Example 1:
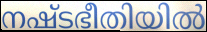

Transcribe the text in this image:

നഷ്ടഭീതിയിൽ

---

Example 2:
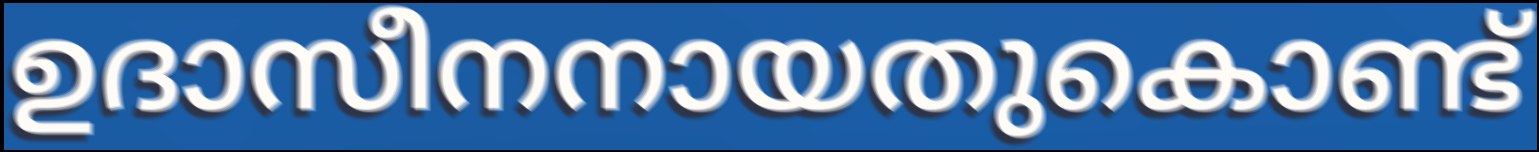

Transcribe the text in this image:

ഉദാസീനനായതുകൊണ്ട്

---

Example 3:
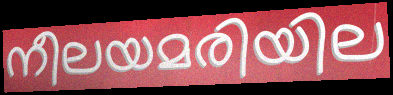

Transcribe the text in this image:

നീലയമരിയില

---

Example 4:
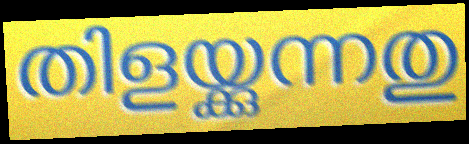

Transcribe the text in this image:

തിളയ്ക്കുന്നതു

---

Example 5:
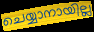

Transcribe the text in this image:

ചെയ്യാനായില്ല